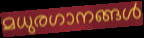
മധുരഗാനങ്ങൾ